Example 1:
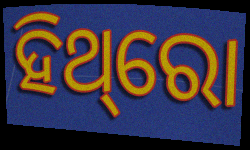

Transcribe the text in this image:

ହିଥ୍‌ରୋ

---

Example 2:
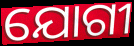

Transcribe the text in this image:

ଯୋଗୀ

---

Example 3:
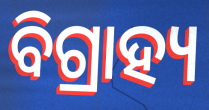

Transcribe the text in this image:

ବିଗ୍ରାହ୍ୟ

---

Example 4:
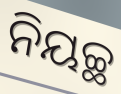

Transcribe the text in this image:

ନିୟଚ୍ଛ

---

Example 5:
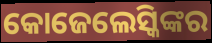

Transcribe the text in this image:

କୋଜେଲେସ୍କିଙ୍କର